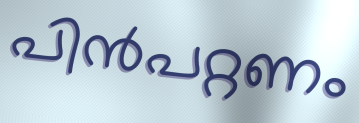
പിൻപറ്റണം